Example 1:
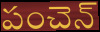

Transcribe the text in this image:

పంచెన్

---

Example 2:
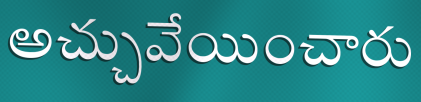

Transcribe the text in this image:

అచ్చువేయించారు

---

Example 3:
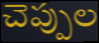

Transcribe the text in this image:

చెప్పుల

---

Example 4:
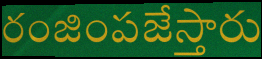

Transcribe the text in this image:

రంజింపజేస్తారు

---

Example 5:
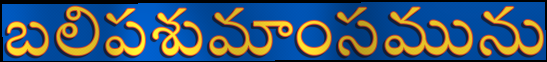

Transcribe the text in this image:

బలిపశుమాంసమును